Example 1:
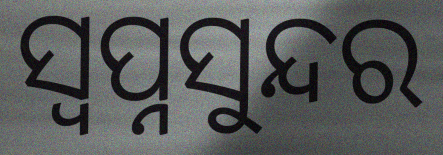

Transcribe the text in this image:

ସ୍ୱପ୍ନସୁନ୍ଦର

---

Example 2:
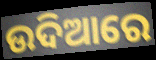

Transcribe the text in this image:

ଉଦିଆରେ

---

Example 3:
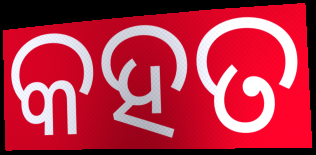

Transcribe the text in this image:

କହତ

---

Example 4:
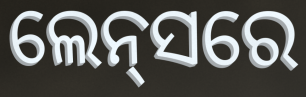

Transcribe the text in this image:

ଲେନ୍‌ସରେ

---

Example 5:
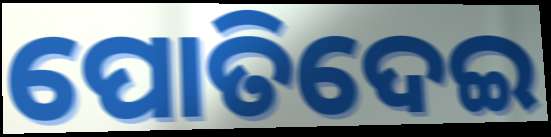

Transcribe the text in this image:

ପୋତିଦେଇ